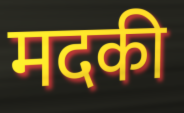
मदकी